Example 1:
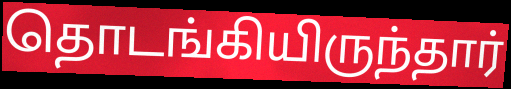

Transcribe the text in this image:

தொடங்கியிருந்தார்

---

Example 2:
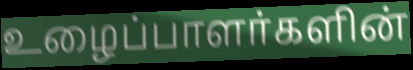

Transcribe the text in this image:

உழைப்பாளர்களின்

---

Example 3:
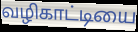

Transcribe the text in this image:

வழிகாட்டியை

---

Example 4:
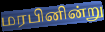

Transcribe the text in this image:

மரபினின்று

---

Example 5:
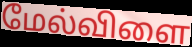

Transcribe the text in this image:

மேல்விளை